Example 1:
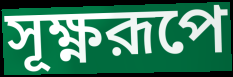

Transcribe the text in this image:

সূক্ষ্ণরূপে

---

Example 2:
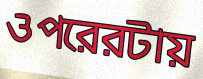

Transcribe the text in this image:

ওপরেরটায়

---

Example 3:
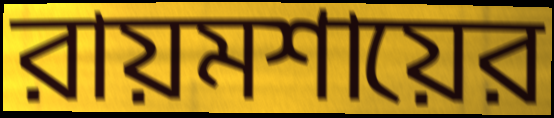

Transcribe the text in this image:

রায়মশায়ের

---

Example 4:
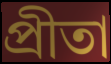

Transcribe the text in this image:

প্রীতা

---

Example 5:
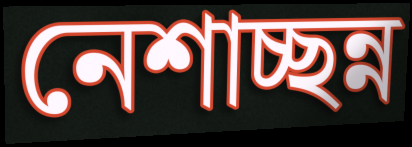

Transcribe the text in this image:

নেশাচ্ছন্ন